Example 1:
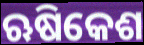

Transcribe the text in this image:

ଋଷିକେଶ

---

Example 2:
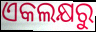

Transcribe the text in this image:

ଏକଲକ୍ଷରୁ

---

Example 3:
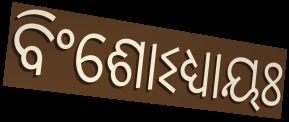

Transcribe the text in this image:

ବିଂଶୋଽଧ୍ୟାୟଃ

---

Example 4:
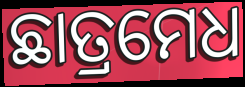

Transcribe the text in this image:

ଛାତ୍ରମେଧ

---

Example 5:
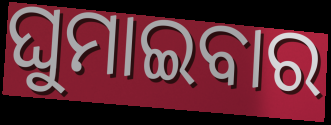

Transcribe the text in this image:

ଘୁମାଇବାର